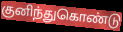
குனிந்துகொண்டு